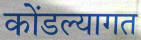
कोंडल्यागत